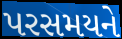
પરસમયને